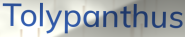
Tolypanthus